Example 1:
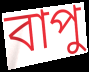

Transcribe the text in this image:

বাপু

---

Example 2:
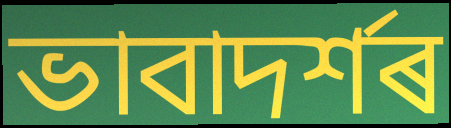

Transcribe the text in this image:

ভাবাদৰ্শৰ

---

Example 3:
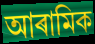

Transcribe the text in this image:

আৰামিক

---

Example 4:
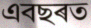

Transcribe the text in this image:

এবছৰত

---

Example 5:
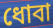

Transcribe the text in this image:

ধোবা